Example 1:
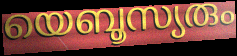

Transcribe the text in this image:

യെബൂസ്യരും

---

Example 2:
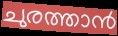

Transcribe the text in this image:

ചുരത്താൻ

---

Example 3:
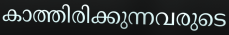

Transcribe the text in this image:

കാത്തിരിക്കുന്നവരുടെ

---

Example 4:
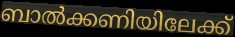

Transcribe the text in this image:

ബാൽക്കണിയിലേക്ക്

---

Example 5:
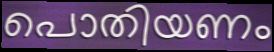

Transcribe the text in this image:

പൊതിയണം